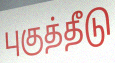
புகுத்தீடு